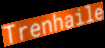
Trenhaile